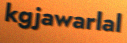
kgjawarlal